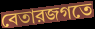
বেতারজগতে